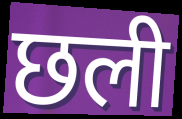
छली